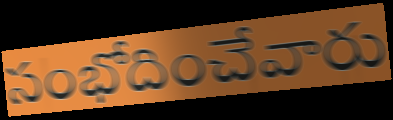
సంభోదించేవారు